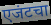
एजंटचा